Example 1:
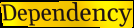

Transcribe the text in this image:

Dependency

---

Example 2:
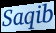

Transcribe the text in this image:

Saqib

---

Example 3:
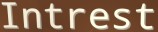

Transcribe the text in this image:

Intrest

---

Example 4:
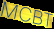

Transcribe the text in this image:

MCBT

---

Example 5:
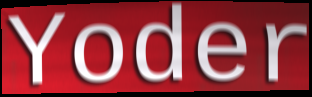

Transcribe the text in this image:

Yoder